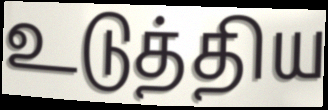
உடுத்திய